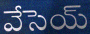
వేసెయ్